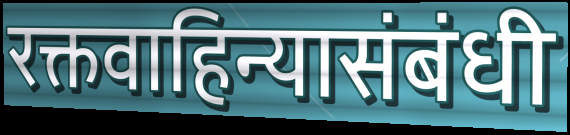
रक्तवाहिन्यासंबंधी